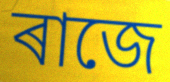
ৰাজে